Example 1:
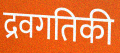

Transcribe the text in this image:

द्रवगतिकी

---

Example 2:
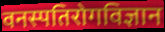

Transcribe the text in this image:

वनस्पतिरोगविज्ञान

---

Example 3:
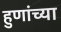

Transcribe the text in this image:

हुणांच्या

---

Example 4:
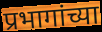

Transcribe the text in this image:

प्रभागांच्या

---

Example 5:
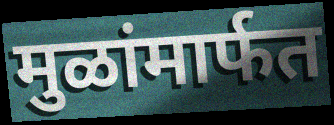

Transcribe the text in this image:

मुळांमार्फत